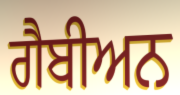
ਗੈਬੀਅਨ